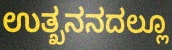
ಉತ್ಖನನದಲ್ಲೂ